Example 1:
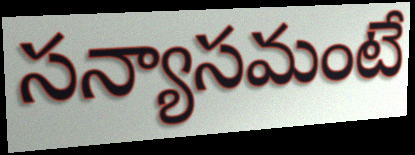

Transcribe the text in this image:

సన్యాసమంటే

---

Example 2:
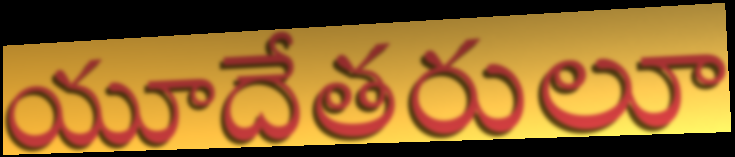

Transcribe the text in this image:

యూదేతరులూ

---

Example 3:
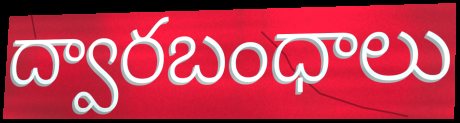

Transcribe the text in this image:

ద్వారబంధాలు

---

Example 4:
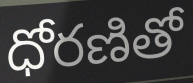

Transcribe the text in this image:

ధోరణితో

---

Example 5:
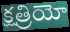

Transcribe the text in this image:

క్షత్రియో